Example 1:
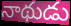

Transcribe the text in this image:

నాథుడు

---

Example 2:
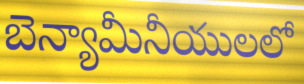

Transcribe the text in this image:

బెన్యామీనీయులలో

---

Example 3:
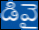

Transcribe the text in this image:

డివై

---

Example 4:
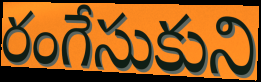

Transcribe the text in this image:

రంగేసుకుని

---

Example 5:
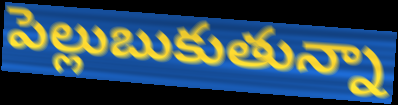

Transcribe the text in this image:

పెల్లుబుకుతున్నా